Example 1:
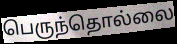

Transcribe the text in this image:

பெருந்தொல்லை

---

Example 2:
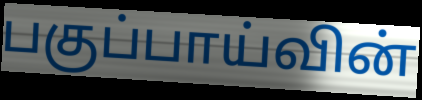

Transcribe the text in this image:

பகுப்பாய்வின்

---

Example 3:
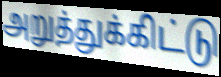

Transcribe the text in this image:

அறுத்துக்கிட்டு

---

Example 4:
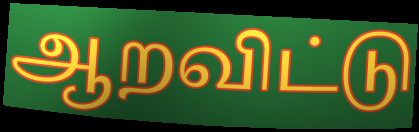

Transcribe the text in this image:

ஆறவிட்டு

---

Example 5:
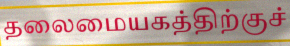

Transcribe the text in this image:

தலைமையகத்திற்குச்